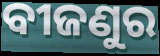
ବୀଜଣୁର